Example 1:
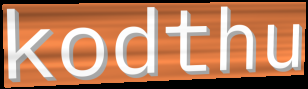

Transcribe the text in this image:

kodthu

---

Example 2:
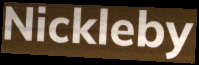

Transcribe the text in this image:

Nickleby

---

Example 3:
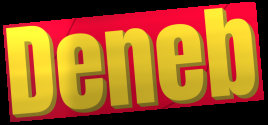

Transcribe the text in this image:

Deneb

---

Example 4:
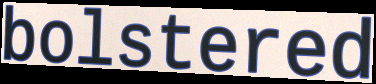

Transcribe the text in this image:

bolstered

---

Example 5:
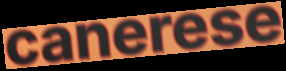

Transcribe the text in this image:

canerese